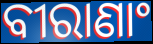
ବୀରାଣାଂ